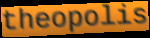
theopolis